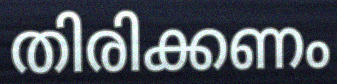
തിരിക്കണം